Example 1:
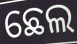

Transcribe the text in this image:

ଛେଲ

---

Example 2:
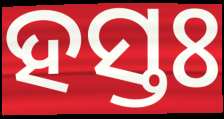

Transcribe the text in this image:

ହସ୍ତଃ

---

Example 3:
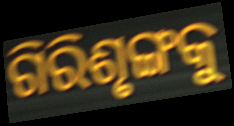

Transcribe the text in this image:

ଗିରିଶୃଙ୍ଗକୁ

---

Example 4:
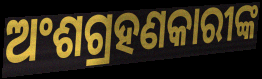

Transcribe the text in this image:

ଅଂଶଗ୍ରହଣକାରୀଙ୍କ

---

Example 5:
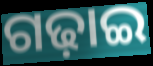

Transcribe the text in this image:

ଗଢ଼ାଇ